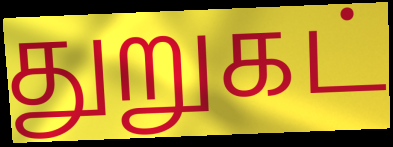
துறுகட்